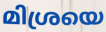
മിശ്രയെ